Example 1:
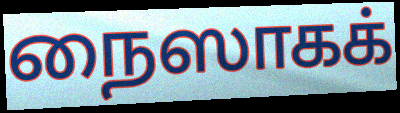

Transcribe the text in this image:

நைஸாகக்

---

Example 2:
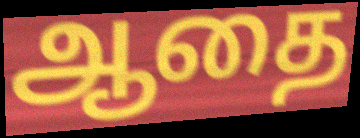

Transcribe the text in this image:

ஆதை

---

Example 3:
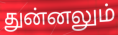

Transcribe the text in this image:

துன்னலும்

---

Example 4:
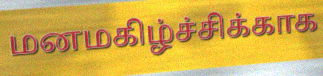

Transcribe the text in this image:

மனமகிழ்ச்சிக்காக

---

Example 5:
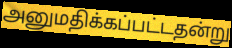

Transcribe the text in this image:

அனுமதிக்கப்பட்டதன்று